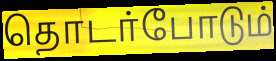
தொடர்போடும்